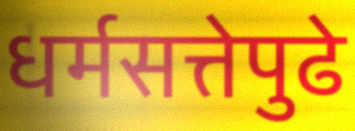
धर्मसत्तेपुढे